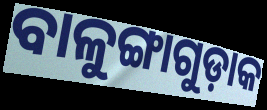
ବାଳୁଙ୍ଗାଗୁଡ଼ାକ